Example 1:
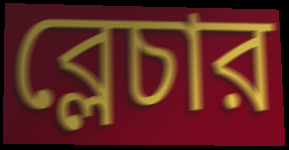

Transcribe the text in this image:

ব্লেচার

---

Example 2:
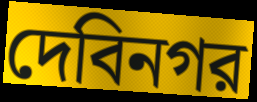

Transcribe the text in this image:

দেবিনগর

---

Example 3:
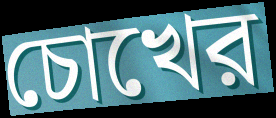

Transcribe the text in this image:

চোখের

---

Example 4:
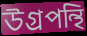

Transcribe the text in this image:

উগ্রপন্থি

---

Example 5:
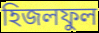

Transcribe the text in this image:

হিজলফুল